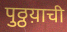
पुठ्ठय़ाची